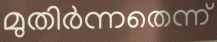
മുതിർന്നതെന്ന്